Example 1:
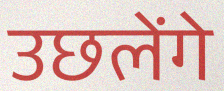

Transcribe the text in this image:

उछलेंगे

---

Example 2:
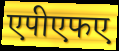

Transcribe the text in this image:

एपीएफए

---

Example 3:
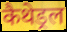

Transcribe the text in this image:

कैथेड्रल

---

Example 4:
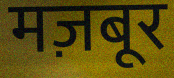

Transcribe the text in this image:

मज़बूर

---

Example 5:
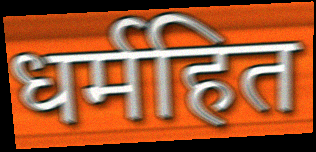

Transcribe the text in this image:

धर्महित